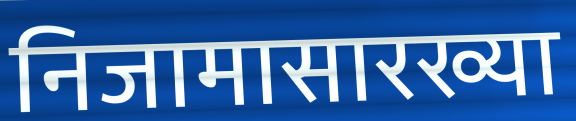
निजामासारख्या